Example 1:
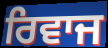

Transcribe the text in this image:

ਰਿਵਾਜ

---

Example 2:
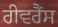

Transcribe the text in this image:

ਰੀਵਰੈਂਸ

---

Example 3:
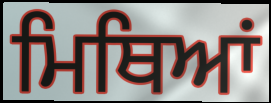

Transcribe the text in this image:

ਮਿਥਿਆਂ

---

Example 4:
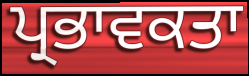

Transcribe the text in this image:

ਪ੍ਰਭਾਵਕਤਾ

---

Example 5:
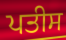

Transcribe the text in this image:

ਪਤੀਸ